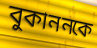
বুকাননকে